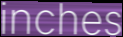
inches